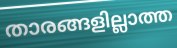
താരങ്ങളില്ലാത്ത